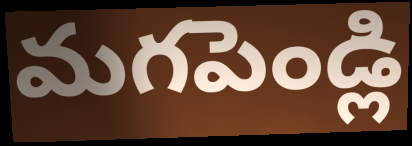
మగపెండ్లి